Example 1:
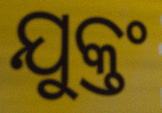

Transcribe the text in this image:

ଯୁକ୍ତଂ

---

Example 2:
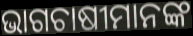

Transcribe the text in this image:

ଭାଗଚାଷୀମାନଙ୍କ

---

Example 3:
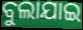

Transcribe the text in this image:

ବୁଲାଯାଇ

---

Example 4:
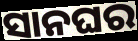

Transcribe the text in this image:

ସାନଘର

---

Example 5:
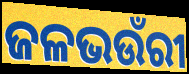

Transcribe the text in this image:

ଜଳଭଉଁରୀ